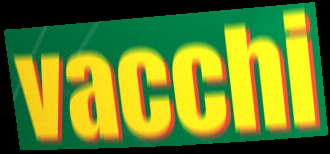
vacchi